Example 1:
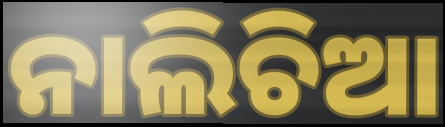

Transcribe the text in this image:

ନାଲିଚିଆ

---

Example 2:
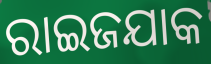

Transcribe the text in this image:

ରାଇଜଯାକ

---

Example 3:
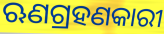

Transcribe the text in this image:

ଋଣଗ୍ରହଣକାରୀ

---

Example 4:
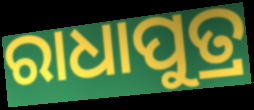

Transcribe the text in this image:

ରାଧାପୁତ୍ର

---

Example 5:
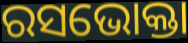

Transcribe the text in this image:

ରସଭୋକ୍ତା